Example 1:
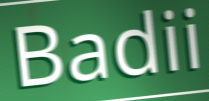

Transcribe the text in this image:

Badii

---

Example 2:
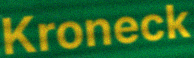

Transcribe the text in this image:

Kroneck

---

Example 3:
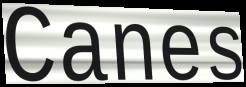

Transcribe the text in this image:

Canes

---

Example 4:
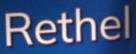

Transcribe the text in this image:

Rethel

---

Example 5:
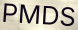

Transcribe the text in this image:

PMDS